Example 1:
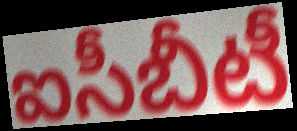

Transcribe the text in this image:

ఐసీబీటీ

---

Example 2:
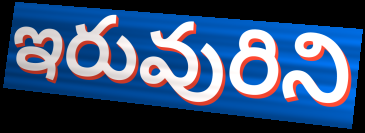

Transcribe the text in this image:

ఇరువురిని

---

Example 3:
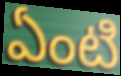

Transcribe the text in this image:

ఏంటి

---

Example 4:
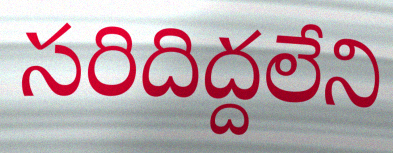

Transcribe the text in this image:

సరిదిద్దలేని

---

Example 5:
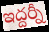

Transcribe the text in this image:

ఇద్దర్నీ